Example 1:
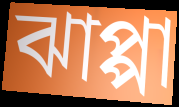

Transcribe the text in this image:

ঝাপ্পা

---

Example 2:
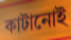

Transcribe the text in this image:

কাটানোই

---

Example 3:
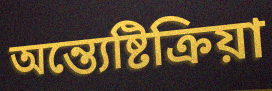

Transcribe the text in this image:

অন্ত্যেষ্টিক্রিয়া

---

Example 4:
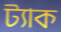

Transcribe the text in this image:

ট্যাক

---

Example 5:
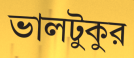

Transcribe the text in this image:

ভালটুকুর